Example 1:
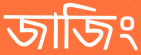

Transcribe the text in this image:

জাজিং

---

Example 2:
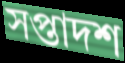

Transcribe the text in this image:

সপ্তাদশ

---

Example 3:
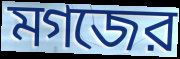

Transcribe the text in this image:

মগজের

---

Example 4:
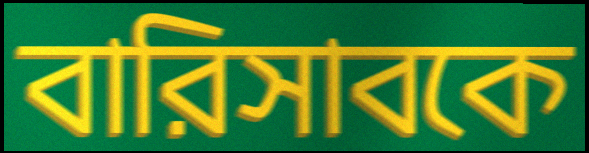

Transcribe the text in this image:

বারিসাবকে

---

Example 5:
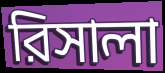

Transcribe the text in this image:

রিসালা